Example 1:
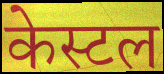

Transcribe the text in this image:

केस्टल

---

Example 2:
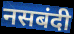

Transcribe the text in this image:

नसबंदी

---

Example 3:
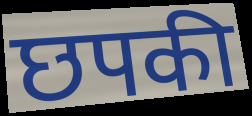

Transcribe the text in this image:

छपकी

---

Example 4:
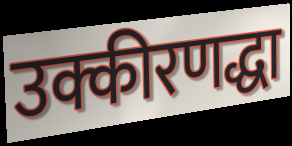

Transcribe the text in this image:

उक्कीरणद्धा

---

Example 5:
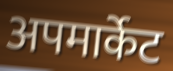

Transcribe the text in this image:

अपमार्केट